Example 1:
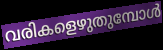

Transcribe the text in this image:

വരികളെഴുതുമ്പോൾ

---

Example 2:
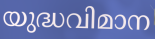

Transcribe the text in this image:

യുദ്ധവിമാന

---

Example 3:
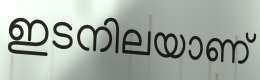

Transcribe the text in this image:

ഇടനിലയാണ്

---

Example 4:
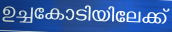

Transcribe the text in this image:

ഉച്ചകോടിയിലേക്ക്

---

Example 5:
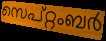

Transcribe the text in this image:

സെപ്റ്റംബർ